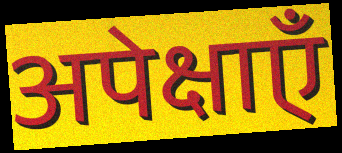
अपेक्षाएँ